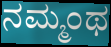
ನಮ್ಮಂಥ